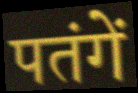
पतंगें